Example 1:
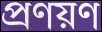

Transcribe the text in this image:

প্রণয়ণ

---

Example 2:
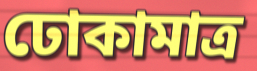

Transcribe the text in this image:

ঢোকামাত্র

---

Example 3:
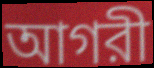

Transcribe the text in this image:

আগরী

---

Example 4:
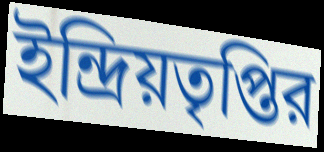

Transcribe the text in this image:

ইন্দ্রিয়তৃপ্তির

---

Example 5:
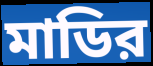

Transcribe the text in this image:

মাডির